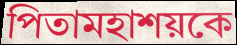
পিতামহাশয়কে